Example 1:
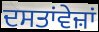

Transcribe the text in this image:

ਦਸਤਾਂਵੇਜ਼ਾਂ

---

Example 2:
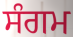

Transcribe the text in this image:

ਸੰਗਮ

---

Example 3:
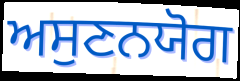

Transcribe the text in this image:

ਅਸੁਣਨਯੋਗ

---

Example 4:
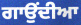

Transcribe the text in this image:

ਗਾਉਂਦੀਆ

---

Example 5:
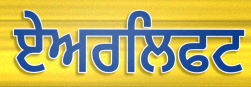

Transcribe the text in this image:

ਏਅਰਲਿਫਟ